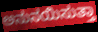
ಅನುನಯಿಸುತ್ತಾ